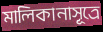
মালিকানাসূত্রে